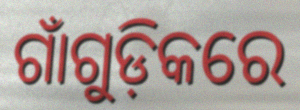
ଗାଁଗୁଡ଼ିକରେ